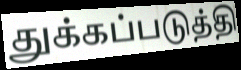
துக்கப்படுத்தி